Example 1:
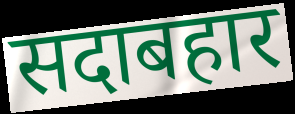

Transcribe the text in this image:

सदाबहार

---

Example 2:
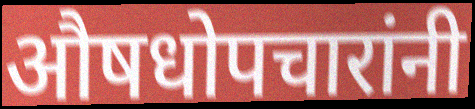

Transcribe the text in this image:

औषधोपचारांनी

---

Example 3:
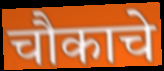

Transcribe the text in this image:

चौकाचे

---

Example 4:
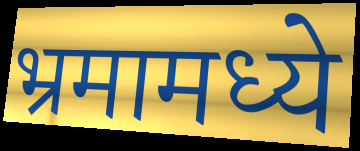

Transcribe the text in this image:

भ्रमामध्ये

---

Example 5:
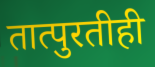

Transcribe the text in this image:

तात्पुरतीही